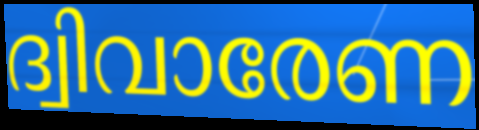
ദ്വിവാരേണ